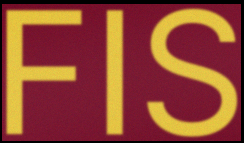
FIS